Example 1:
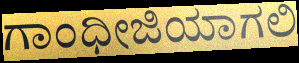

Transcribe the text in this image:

ಗಾಂಧೀಜಿಯಾಗಲಿ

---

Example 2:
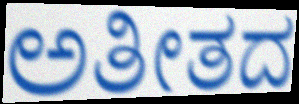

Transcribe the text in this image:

ಅತೀತದ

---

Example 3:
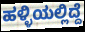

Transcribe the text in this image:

ಹಳ್ಳಿಯಲ್ಲಿದ್ದೆ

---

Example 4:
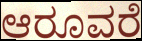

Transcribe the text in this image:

ಆರೂವರೆ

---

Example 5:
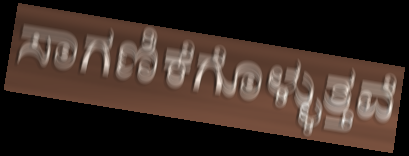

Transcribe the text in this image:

ಸಾಗಣಿಕೆಗೊಳ್ಳುತ್ತವೆ